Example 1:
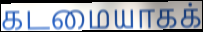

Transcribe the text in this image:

கடமையாகக்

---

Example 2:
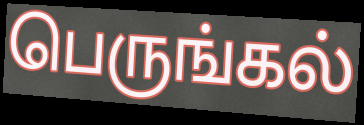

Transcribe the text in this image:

பெருங்கல்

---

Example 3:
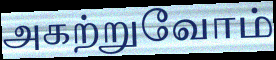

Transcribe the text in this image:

அகற்றுவோம்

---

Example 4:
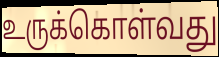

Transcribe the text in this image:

உருக்கொள்வது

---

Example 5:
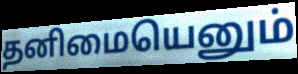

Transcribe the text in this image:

தனிமையெனும்